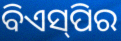
ବିଏସ୍‌ପିର